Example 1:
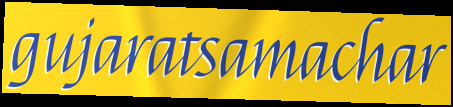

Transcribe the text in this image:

gujaratsamachar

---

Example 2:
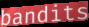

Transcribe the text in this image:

bandits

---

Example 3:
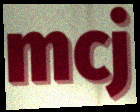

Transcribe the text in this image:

mcj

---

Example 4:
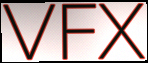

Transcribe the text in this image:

VFX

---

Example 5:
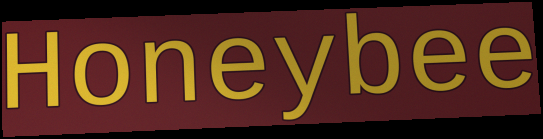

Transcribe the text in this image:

Honeybee